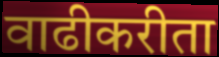
वाढीकरीता